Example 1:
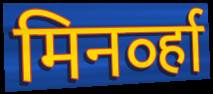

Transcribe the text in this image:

मिनर्व्हा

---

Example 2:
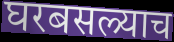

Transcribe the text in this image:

घरबसल्याच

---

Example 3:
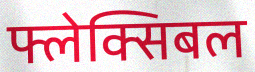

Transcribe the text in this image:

फ्लेक्सिबल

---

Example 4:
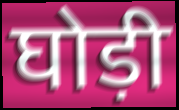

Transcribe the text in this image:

घोड़ी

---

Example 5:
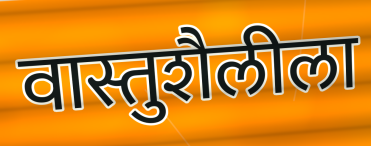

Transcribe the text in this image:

वास्तुशैलीला